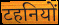
टहनियों